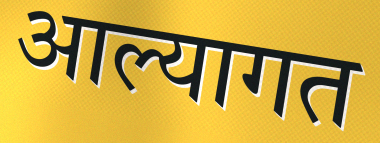
आल्यागत